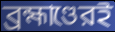
ব্রহ্মাণ্ডেরই